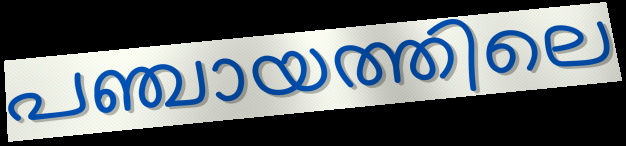
പഞ്ചായത്തിലെ